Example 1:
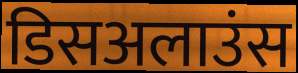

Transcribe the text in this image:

डिसअलाउंस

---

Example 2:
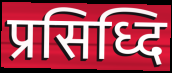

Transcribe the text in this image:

प्रसिध्दि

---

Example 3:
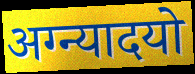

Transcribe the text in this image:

अग्न्यादयो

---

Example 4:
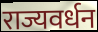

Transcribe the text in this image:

राज्यवर्धन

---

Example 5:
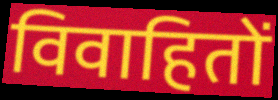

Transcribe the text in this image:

विवाहितों